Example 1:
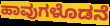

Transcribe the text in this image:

ಹಾವುಗಳೊಡನೆ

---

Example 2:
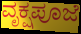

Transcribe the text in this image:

ವೃಕ್ಷಪೂಜೆ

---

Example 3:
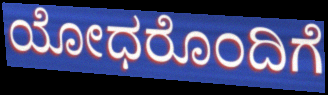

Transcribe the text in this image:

ಯೋಧರೊಂದಿಗೆ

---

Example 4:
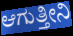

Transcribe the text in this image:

ಆಗುತ್ತೀನಿ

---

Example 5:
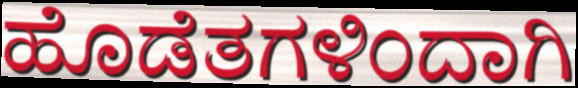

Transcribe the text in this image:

ಹೊಡೆತಗಳಿಂದಾಗಿ